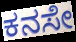
ಕನಸೇ